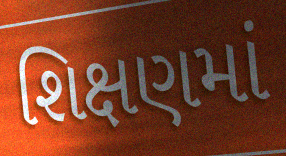
શિક્ષણમાં